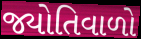
જ્યોતિવાળો